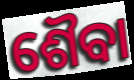
ଶୈବା